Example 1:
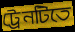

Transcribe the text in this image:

ট্রেনটিতে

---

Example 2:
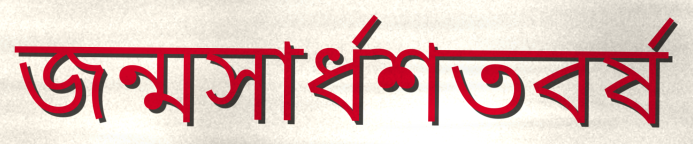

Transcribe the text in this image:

জন্মসার্ধশতবর্ষ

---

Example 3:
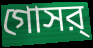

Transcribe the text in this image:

গোসর্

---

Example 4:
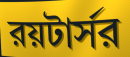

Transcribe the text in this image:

রয়টার্সর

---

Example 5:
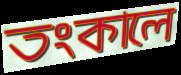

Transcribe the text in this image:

তংকালে